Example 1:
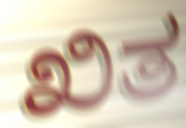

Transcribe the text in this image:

ಖಿತ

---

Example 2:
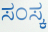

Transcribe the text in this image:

ಸಂಸ್ಕ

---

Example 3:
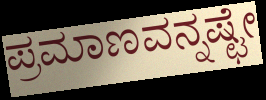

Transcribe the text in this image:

ಪ್ರಮಾಣವನ್ನಷ್ಟೇ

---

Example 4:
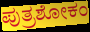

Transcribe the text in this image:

ಪುತ್ರಶೋಕಂ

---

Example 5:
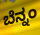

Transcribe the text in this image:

ಬೆನ್ನಂ